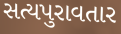
સત્યપુરાવતાર